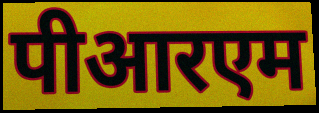
पीआरएम